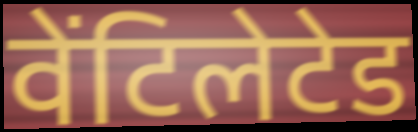
वेंटिलेटेड